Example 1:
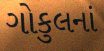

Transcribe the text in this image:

ગોકુલનાં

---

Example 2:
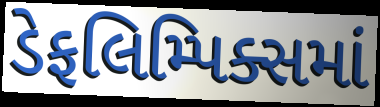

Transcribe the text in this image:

ડેફલિમ્પિક્સમાં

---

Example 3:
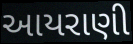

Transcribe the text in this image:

આયરાણી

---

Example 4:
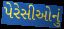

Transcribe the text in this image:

પેરેસીઓનું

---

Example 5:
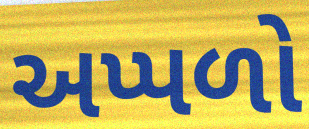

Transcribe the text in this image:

અપ્પળો